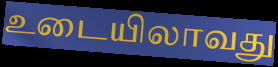
உடையிலாவது